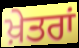
ਖ਼ੇਤਰਾਂ